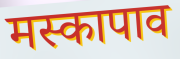
मस्कापाव